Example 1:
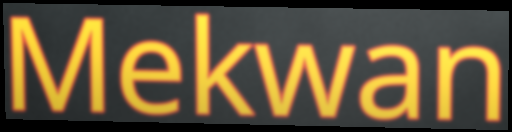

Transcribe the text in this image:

Mekwan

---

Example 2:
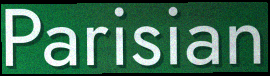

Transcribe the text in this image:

Parisian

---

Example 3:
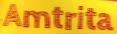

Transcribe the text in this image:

Amtrita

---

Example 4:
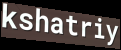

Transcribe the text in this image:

kshatriy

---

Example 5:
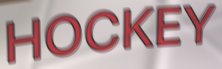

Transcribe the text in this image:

HOCKEY